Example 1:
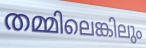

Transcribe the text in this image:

തമ്മിലെങ്കിലും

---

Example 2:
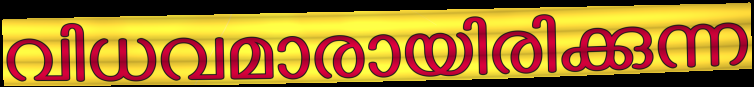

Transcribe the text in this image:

വിധവമാരായിരിക്കുന്ന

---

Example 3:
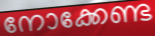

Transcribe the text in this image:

നോക്കേണ്ട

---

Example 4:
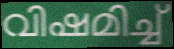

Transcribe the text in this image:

വിഷമിച്ച്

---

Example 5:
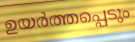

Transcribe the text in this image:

ഉയർത്തപ്പെടും